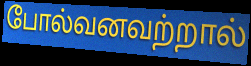
போல்வனவற்றால்